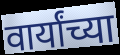
वार्यांच्या